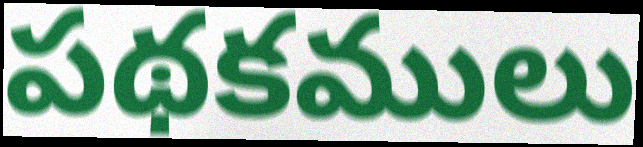
పథకములు